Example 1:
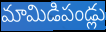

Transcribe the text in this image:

మామిడిపండ్లు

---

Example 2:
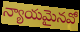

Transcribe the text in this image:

న్యాయమైనవో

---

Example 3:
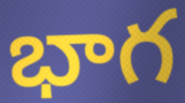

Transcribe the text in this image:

భాగ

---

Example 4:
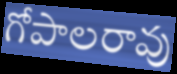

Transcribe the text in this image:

గోపాలరావు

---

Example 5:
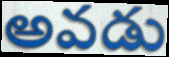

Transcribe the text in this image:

అవడు